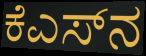
ಕೆಎಸ್‌ನ